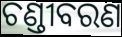
ଚଣ୍ଡୀବରଣ